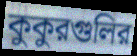
কুকুরগুলির